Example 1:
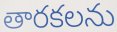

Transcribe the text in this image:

తారకలను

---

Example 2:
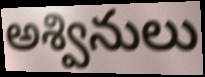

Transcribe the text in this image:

అశ్వినులు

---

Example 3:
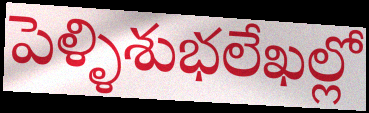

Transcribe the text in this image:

పెళ్ళిశుభలేఖల్లో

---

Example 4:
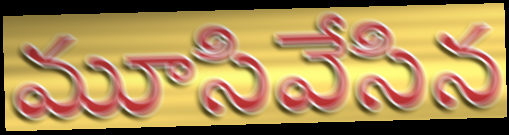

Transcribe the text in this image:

మూసివేసిన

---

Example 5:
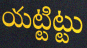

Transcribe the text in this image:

యట్టిట్టు